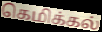
கெமிக்கல்